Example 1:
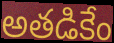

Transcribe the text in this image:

అతడికేం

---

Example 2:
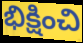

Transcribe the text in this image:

భిక్షించి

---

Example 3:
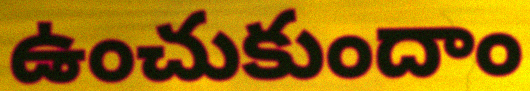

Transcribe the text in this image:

ఉంచుకుందాం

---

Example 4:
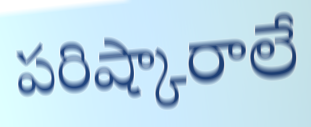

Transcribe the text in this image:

పరిష్కారాలే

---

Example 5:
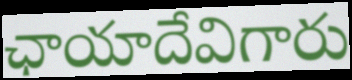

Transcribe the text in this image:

ఛాయాదేవిగారు